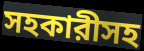
সহকারীসহ